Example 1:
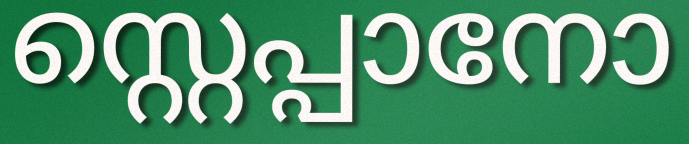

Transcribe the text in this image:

സ്റ്റെപ്പാനോ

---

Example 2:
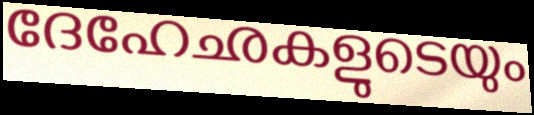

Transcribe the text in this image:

ദേഹേഛകളുടെയും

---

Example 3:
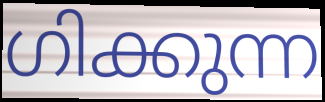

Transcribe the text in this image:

ഗിക്കുന്ന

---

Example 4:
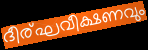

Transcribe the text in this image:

ദീര്ഘവീക്ഷണവും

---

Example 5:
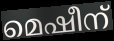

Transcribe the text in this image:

മെഷീന്